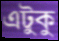
এটুকু